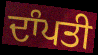
ਦਾੰਪਤੀ